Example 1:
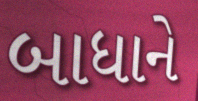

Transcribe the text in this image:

બાધાને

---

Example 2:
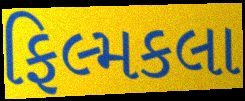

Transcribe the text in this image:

ફિલ્મકલા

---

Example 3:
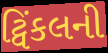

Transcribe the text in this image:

ટ્વિંકલની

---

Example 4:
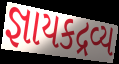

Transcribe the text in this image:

જ્ઞાયકદ્રવ્ય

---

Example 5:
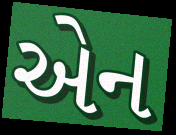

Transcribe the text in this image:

એન